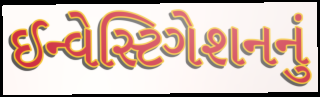
ઈન્વેસ્ટિગેશનનું